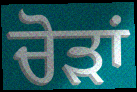
ਚੋੜਾਂ